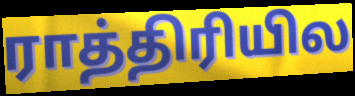
ராத்திரியில